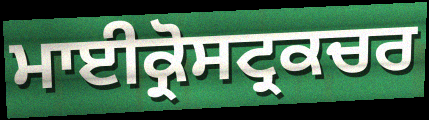
ਮਾਈਕ੍ਰੋਸਟ੍ਰਕਚਰ